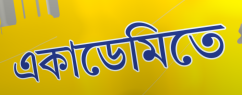
একাডেমিতে